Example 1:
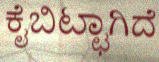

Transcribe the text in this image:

ಕೈಬಿಟ್ಟಾಗಿದೆ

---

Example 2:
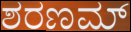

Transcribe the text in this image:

ಶರಣಮ್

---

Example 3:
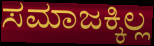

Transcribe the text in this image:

ಸಮಾಜಕ್ಕಿಲ್ಲ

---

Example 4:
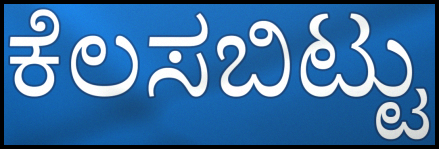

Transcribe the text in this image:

ಕೆಲಸಬಿಟ್ಟು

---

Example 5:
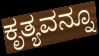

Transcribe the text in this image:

ಕೃತ್ಯವನ್ನೂ